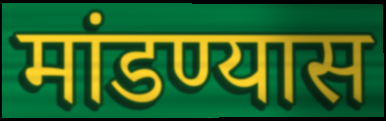
मांडण्यास